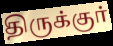
திருக்குர்